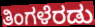
ತಿಂಗಳೆರಡು